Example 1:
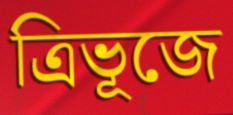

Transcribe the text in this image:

ত্ৰিভূজে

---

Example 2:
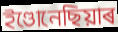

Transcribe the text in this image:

ইণ্ডোনেছিয়াৰ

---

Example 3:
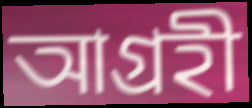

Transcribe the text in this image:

আগ্ৰহী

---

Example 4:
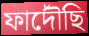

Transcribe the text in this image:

ফাৰ্দৌছি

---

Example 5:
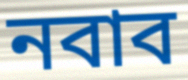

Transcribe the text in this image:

নবাব